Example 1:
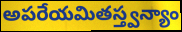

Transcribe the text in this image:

అపరేయమితస్త్వన్యాం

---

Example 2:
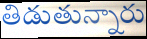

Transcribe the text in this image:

తిడుతున్నారు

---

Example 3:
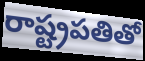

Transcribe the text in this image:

రాష్ట్రపతితో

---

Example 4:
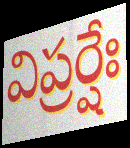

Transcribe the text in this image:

విప్రర్షేః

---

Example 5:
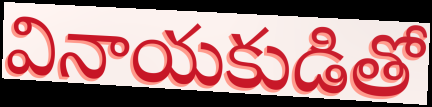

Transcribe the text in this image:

వినాయకుడితో